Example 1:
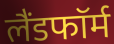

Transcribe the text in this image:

लैंडफॉर्म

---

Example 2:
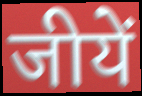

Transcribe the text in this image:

जीयें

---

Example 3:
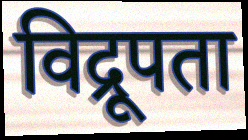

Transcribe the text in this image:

विद्रूपता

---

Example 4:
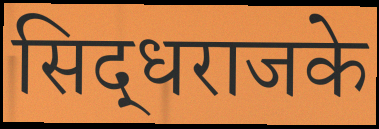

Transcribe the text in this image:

सिद्धराजके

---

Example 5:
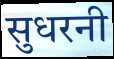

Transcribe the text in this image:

सुधरनी